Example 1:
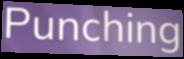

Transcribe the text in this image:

Punching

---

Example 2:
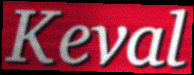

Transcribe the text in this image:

Keval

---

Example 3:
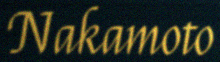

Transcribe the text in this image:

Nakamoto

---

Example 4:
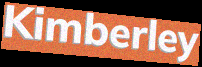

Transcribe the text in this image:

Kimberley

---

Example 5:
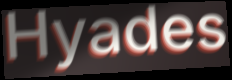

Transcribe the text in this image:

Hyades